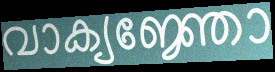
വാക്യജ്ഞോ